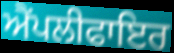
ਐਂਪਲੀਫਾਇਰ